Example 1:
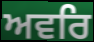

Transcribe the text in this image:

ਅਵਰਿ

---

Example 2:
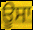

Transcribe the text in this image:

ਊਸਾ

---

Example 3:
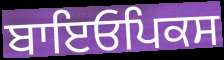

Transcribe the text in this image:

ਬਾਇਓਪਿਕਸ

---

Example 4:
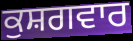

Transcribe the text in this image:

ਕੁਸ਼ਗਵਾਰ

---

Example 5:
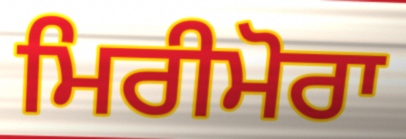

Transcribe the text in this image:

ਮਿਰੀਮੋਰਾ